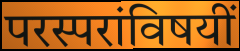
परस्परांविषयीं